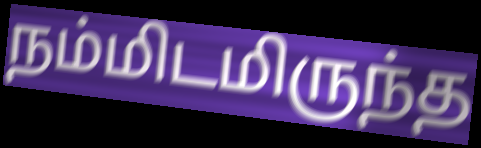
நம்மிடமிருந்த